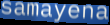
samayena